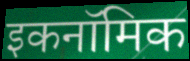
इकनॉमिक